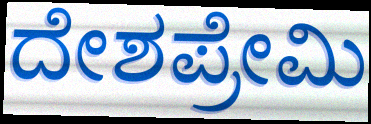
ದೇಶಪ್ರೇಮಿ